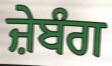
ਜ਼ੇਬੰਗ